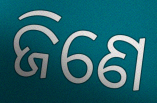
ଜିଣେ